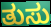
ತುಸು